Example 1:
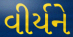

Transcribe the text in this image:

વીર્યને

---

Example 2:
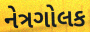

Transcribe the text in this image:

નેત્રગોલક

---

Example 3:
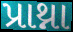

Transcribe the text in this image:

પ્રાથ્ના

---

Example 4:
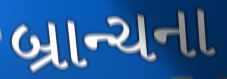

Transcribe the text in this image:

બ્રાન્ચના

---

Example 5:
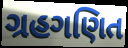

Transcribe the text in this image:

ગ્રહગણિત